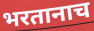
भरतानाच